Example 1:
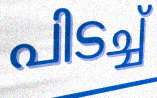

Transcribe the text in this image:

പിടച്ച്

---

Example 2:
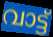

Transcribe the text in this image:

വാട്ട്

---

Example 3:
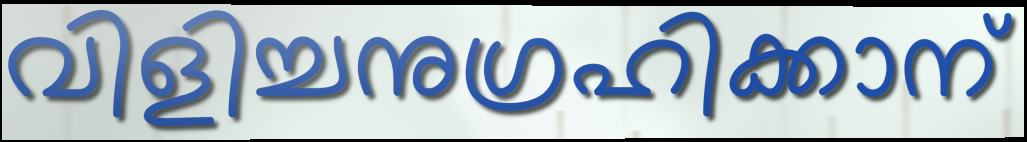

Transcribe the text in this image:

വിളിച്ചനുഗ്രഹിക്കാന്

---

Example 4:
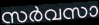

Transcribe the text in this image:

സർവസാ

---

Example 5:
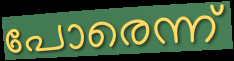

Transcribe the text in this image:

പോരെന്ന്